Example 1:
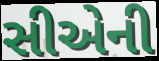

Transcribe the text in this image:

સીએની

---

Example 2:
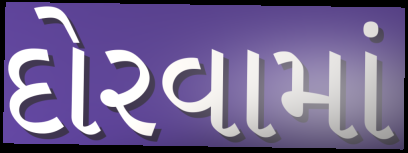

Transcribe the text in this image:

દોરવામાં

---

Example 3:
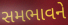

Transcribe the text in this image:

સમભાવને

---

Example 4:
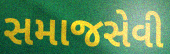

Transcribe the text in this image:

સમાજસેવી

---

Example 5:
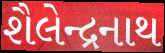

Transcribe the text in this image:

શૈલેન્દ્રનાથ